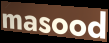
masood